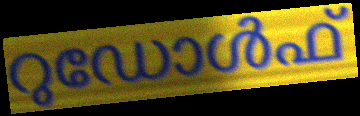
റുഡോൾഫ്